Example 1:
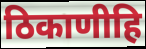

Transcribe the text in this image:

ठिकाणीहि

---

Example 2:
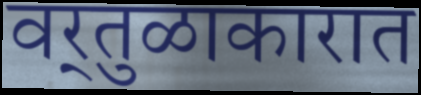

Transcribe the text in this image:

वर्तुळाकारात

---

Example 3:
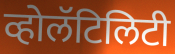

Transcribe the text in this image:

व्होलॅटिलिटी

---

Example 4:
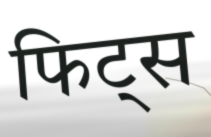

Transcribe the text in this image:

फिट्स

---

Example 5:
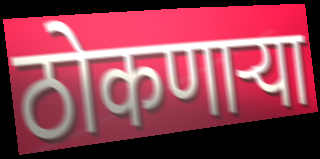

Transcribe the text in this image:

ठोकणाऱ्या